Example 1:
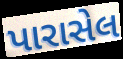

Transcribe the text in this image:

પારાસેલ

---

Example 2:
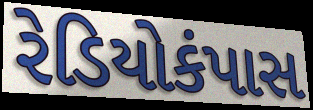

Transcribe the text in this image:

રેડિયોકંપાસ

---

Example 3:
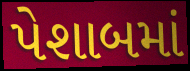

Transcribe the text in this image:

પેશાબમાં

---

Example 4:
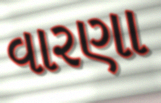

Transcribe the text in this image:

વારણા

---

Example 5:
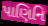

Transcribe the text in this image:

પાણિનિ